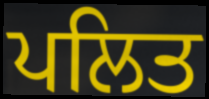
ਪਲਿਤ